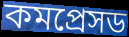
কমপ্রেসড